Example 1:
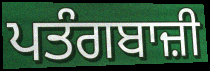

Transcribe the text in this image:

ਪਤੰਗਬਾਜ਼ੀ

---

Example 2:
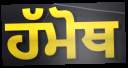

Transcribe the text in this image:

ਹੱਮੋਥ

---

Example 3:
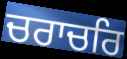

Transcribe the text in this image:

ਚਰਾਚਰਿ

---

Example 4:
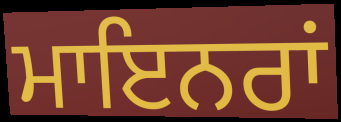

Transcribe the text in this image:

ਮਾਇਨਰਾਂ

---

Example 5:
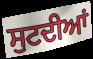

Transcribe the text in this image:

ਸੁਟਦੀਆਂ